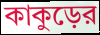
কাকুড়ের